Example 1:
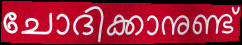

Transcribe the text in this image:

ചോദിക്കാനുണ്ട്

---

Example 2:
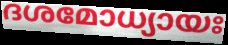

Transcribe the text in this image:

ദശമോധ്യായഃ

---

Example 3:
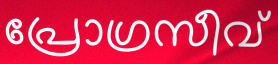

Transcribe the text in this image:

പ്രോഗ്രസീവ്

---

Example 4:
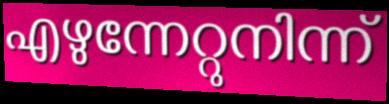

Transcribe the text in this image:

എഴുന്നേറ്റുനിന്ന്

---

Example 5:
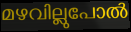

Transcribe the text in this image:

മഴവില്ലുപോൽ